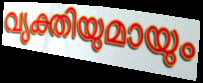
വ്യക്തിയുമായും